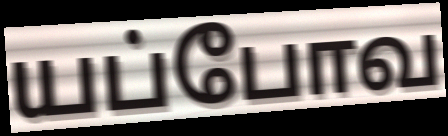
யப்போவ